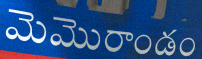
మెమొరాండం